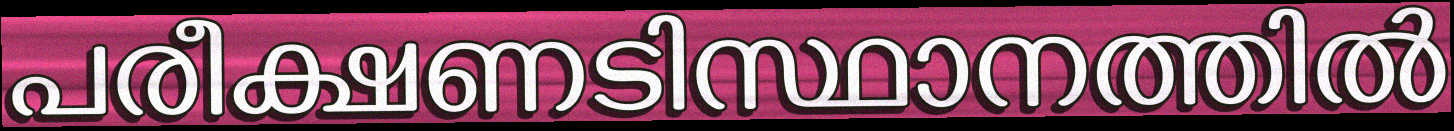
പരീക്ഷണടിസ്ഥാനത്തിൽ